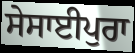
ਸੇਸਾਈਪੁਰਾ